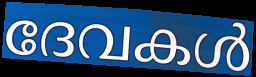
ദേവകൾ